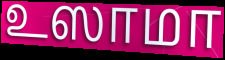
உஸாமா